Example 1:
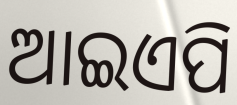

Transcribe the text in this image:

ଆଇଏପି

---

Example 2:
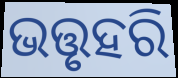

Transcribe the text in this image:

ଭତ୍ତୃହରି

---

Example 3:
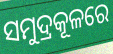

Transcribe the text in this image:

ସମୁଦ୍ରକୂଳରେ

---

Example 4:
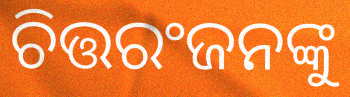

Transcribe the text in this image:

ଚିତ୍ତରଂଜନଙ୍କୁ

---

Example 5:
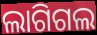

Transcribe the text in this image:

ଲାଗିଗଲ